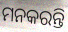
ମନକରନ୍ତି